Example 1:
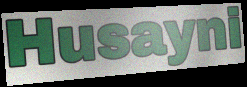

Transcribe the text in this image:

Husayni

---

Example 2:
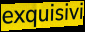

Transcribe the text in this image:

exquisivi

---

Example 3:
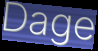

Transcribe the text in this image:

Dage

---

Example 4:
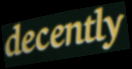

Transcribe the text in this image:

decently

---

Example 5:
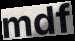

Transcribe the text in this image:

mdf